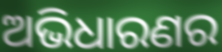
ଅଭିଧାରଣର